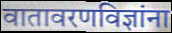
वातावरणविज्ञांना